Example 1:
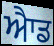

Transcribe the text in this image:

ਐਾਡ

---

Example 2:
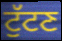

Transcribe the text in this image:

ਟੁੱਟਣ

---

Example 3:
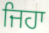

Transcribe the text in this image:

ਜਿਹਾ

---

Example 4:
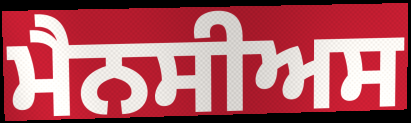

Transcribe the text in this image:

ਮੈਨਸੀਅਸ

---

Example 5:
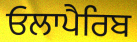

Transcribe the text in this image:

ਓਲਾਪੈਰਿਬ